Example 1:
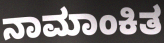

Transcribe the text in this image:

ನಾಮಾಂಕಿತ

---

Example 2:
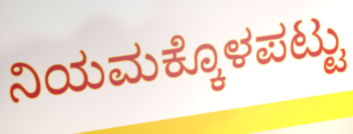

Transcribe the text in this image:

ನಿಯಮಕ್ಕೊಳಪಟ್ಟು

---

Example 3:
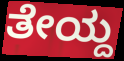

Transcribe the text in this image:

ತೇಯ್ದ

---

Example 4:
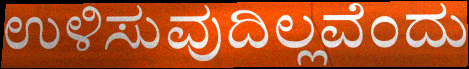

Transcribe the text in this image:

ಉಳಿಸುವುದಿಲ್ಲವೆಂದು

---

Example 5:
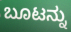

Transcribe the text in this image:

ಬೂಟನ್ನು